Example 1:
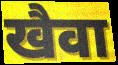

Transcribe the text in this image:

खैवा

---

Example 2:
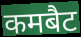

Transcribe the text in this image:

कमबैट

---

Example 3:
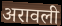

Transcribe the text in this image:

अरावली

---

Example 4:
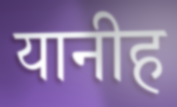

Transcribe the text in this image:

यानीह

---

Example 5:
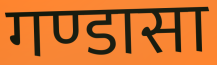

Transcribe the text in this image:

गण्डासा